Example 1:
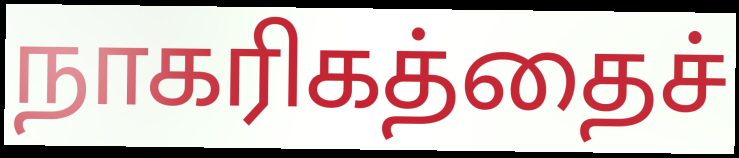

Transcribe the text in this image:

நாகரிகத்தைச்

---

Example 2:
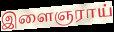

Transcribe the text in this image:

இளைஞராய்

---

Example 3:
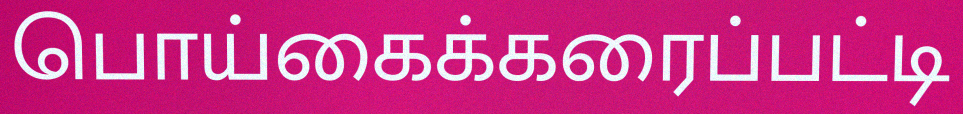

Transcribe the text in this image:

பொய்கைக்கரைப்பட்டி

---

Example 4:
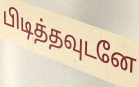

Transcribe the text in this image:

பிடித்தவுடனே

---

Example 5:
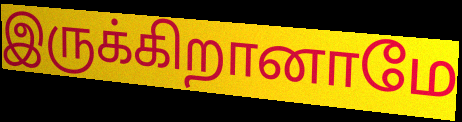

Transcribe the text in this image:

இருக்கிறானாமே